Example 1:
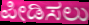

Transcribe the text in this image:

ಪೀಡಿಸಲು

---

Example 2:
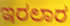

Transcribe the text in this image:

ಇರಲಾರ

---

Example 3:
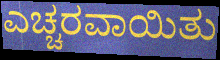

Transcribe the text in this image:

ಎಚ್ಚರವಾಯಿತು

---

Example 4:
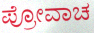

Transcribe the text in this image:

ಪ್ರೋವಾಚ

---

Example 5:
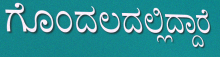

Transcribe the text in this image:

ಗೊಂದಲದಲ್ಲಿದ್ದಾರೆ